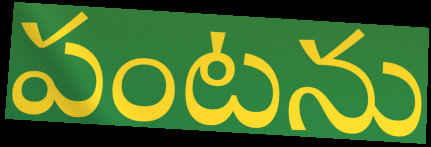
పంటను